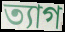
ত্যাগ